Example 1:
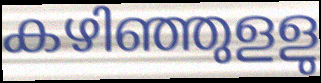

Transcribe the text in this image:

കഴിഞ്ഞുളളു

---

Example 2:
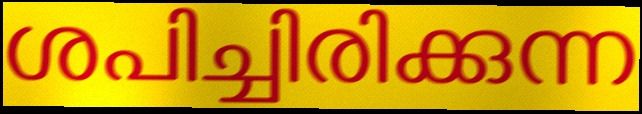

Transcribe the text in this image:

ശപിച്ചിരിക്കുന്ന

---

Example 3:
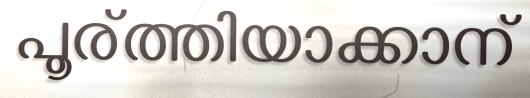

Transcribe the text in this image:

പൂര്ത്തിയാക്കാന്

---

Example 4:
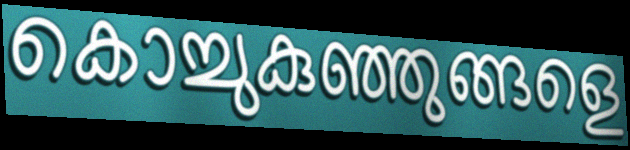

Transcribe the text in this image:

കൊച്ചുകുഞ്ഞുങ്ങളെ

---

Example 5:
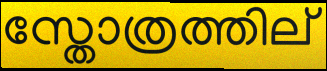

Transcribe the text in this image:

സ്തോത്രത്തില്